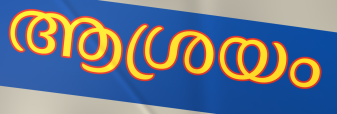
ആശ്രയം